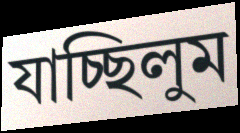
যাচ্ছিলুম